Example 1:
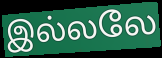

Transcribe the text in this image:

இல்லலே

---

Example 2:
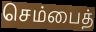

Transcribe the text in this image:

செம்பைத்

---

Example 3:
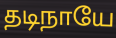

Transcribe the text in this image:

தடிநாயே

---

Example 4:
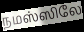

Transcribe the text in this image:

நமஸ்ஸிலே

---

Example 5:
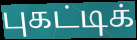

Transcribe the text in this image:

புகட்டிக்